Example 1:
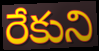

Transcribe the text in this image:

రేకుని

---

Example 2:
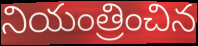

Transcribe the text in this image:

నియంత్రించిన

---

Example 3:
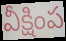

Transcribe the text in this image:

వీక్షింప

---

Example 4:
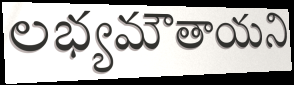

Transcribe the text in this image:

లభ్యమౌతాయని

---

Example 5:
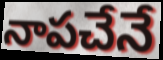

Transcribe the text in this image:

నాపచేనే